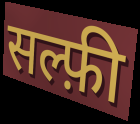
सल्फ़ी